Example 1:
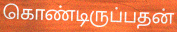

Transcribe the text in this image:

கொண்டிருப்பதன்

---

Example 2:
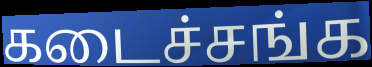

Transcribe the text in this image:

கடைச்சங்க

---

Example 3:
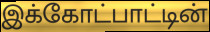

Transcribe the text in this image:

இக்கோட்பாட்டின்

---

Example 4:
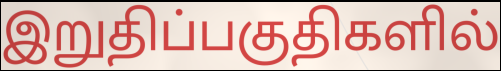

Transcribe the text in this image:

இறுதிப்பகுதிகளில்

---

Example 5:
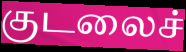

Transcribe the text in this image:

குடலைச்